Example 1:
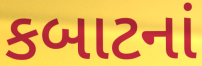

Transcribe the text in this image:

કબાટનાં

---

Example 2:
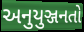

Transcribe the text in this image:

અનુયુઞ્જનતો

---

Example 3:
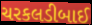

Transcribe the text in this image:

ચરકલડીબાઈ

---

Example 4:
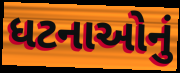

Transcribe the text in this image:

ધટનાઓનું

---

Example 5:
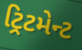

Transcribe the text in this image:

ટ્રિટમેન્ટ